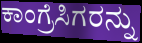
ಕಾಂಗ್ರೆಸಿಗರನ್ನು